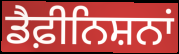
ਡੈਫ਼ੀਨਿਸ਼ਨਾਂ